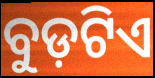
ବୁଡ଼ଟିଏ